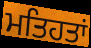
ਮਤਿਹਤਾਂ